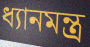
ধ্যানমন্ত্ৰ